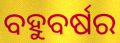
ବହୁବର୍ଷର